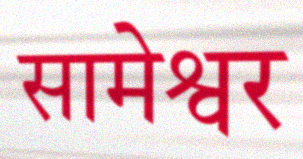
सामेश्वर